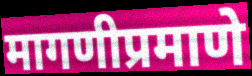
मागणीप्रमाणे